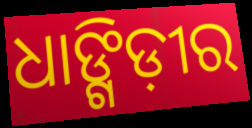
ଧାଙ୍ଗିଡ଼ୀର